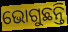
ଭୋଗୁଛନ୍ତି